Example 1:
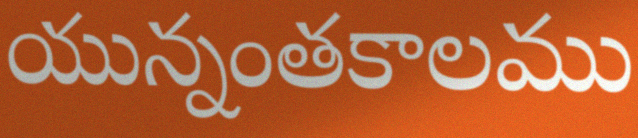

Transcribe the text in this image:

యున్నంతకాలము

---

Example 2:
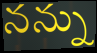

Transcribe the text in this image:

నన్ను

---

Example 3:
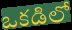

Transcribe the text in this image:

ఒకడిలో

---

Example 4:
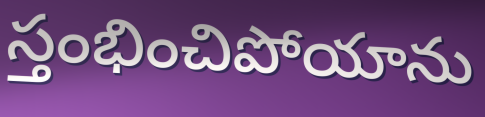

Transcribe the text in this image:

స్తంభించిపోయాను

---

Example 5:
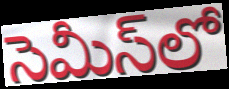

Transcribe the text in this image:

సెమీస్‌లో